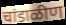
चांडाळीण